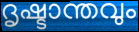
ദൃഷ്ടാന്തവും